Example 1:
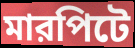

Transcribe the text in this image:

মারপিটে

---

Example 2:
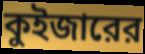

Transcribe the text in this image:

কুইজারের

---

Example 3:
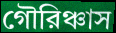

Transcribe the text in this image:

গৌরিঞ্চাস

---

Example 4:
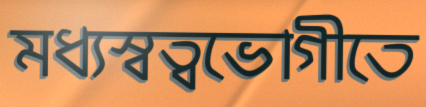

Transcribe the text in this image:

মধ্যস্বত্বভোগীতে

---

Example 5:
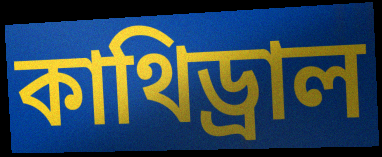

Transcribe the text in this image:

কাথিড্রাল